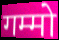
गम्मो